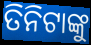
ତିନିଟାଙ୍କୁ